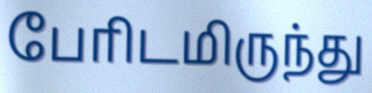
பேரிடமிருந்து